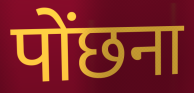
पोंछना